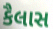
કૈલાસ